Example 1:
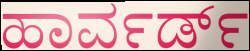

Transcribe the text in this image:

ಹಾರ್ವರ್ಡ್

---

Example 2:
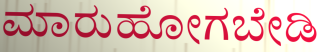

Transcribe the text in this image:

ಮಾರುಹೋಗಬೇಡಿ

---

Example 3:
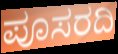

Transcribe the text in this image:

ಪೂಸರದಿ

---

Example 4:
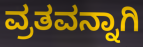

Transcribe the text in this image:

ವ್ರತವನ್ನಾಗಿ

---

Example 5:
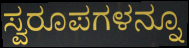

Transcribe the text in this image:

ಸ್ವರೂಪಗಳನ್ನೂ